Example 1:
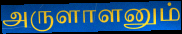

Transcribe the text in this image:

அருளாளனும்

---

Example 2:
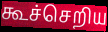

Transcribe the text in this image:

கூச்செறிய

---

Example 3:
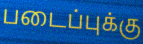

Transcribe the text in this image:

படைப்புக்கு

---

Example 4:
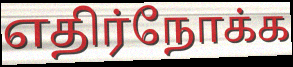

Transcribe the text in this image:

எதிர்நோக்க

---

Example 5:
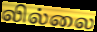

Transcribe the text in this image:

லில்லை